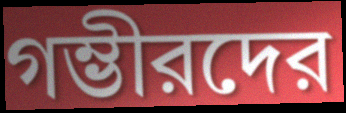
গম্ভীরদের